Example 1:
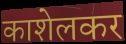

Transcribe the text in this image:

काशेलकर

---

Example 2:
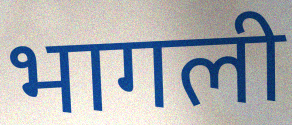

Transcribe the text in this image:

भागली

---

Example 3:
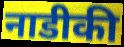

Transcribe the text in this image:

नाडीकी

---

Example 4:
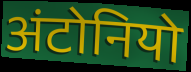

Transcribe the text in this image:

अंटोनियो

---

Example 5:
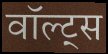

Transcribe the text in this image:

वॉल्ट्स